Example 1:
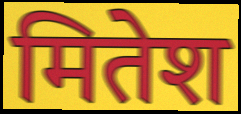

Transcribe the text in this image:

मितेश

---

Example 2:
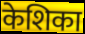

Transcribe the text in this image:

केशिका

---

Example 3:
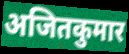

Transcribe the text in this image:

अजितकुमार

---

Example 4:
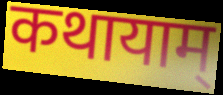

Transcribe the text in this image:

कथायाम्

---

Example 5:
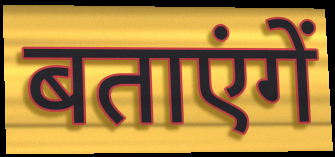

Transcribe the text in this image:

बताएंगें